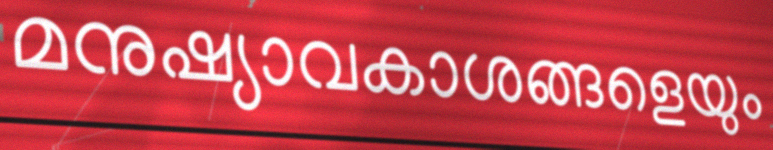
മനുഷ്യാവകാശങ്ങളെയും